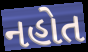
નહોત